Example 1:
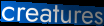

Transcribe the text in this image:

creatures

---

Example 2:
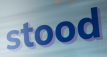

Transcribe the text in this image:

stood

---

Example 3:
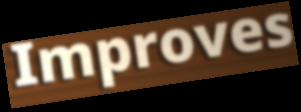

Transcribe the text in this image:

Improves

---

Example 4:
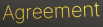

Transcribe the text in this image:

Agreement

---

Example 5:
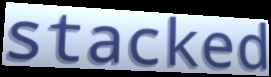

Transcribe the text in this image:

stacked